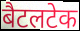
बैटलटेक